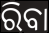
ରିବା